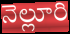
నెల్లూరి